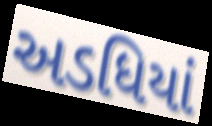
અડધિયાં